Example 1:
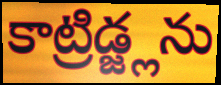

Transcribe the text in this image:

కాట్రిడ్జ్లను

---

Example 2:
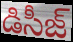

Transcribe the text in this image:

డిసీజ్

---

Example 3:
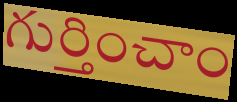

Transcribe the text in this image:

గుర్తించాం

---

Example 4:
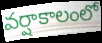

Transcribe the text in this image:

వర్షాకాలంలో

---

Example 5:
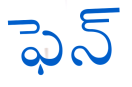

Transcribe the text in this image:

ఫెన్